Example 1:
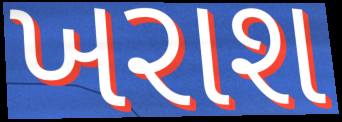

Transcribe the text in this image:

ખરાશ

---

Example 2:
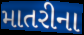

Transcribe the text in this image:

માતરીના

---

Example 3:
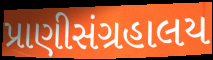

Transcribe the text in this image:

પ્રાણીસંગ્રહાલય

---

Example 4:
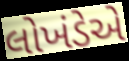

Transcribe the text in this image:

લોખંડેએ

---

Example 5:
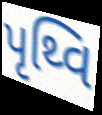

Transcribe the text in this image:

પૃથ્વિ